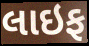
લાઇફ